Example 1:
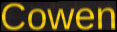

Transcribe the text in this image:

Cowen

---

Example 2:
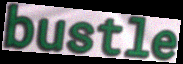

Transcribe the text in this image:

bustle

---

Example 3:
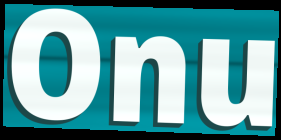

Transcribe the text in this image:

Onu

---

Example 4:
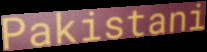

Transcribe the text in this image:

Pakistani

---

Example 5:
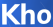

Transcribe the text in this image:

Kho